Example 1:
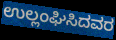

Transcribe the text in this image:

ಉಲ್ಲಂಘಿಸಿದವರ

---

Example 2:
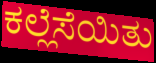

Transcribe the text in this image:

ಕಲ್ಲೆಸೆಯಿತು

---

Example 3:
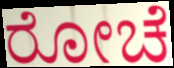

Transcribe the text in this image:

ರೋಚೆ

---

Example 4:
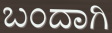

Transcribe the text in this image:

ಬಂದಾಗಿ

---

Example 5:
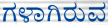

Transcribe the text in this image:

ಗಳಾಗಿರುವ